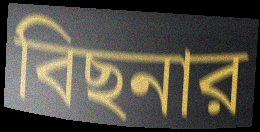
বিছনার